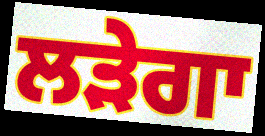
ਲੜੇਗਾ